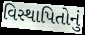
વિસ્થાપિતોનું